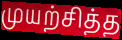
முயற்சித்த